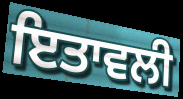
ਇਤਾਵਲੀ